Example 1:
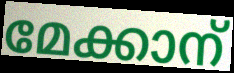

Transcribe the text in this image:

മേക്കാന്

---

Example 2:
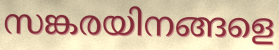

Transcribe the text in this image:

സങ്കരയിനങ്ങളെ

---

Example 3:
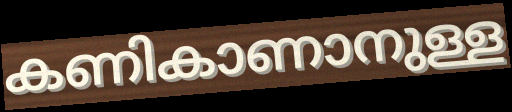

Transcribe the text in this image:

കണികാണാനുള്ള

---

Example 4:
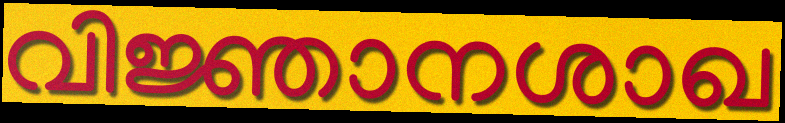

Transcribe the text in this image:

വിജ്ഞാനശാഖ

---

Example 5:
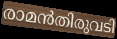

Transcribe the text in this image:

രാമൻതിരുവടി